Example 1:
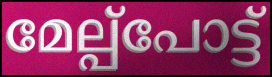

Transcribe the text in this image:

മേല്പ്പോട്ട്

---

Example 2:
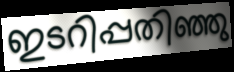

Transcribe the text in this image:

ഇടറിപ്പതിഞ്ഞു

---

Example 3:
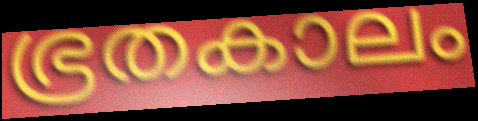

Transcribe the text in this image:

ഭ്രതകാലം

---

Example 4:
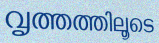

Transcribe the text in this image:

വൃത്തത്തിലൂടെ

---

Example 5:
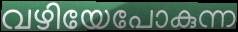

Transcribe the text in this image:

വഴിയേപോകുന്ന